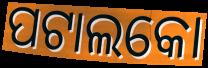
ପଟାଲକୋ